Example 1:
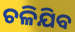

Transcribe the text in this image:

ଚଳିଯିବ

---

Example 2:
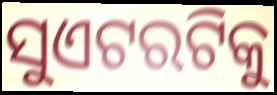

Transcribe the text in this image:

ସୁଏଟରଟିକୁ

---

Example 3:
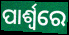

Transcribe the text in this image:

ପାର୍ଶ୍ଵରେ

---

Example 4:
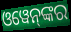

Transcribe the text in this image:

ଓୱେନ୍‌ଙ୍କର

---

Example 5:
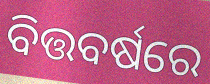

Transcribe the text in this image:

ବିତ୍ତବର୍ଷରେ